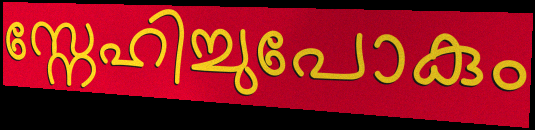
സ്നേഹിച്ചുപോകും